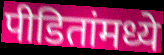
पीडितांमध्ये